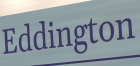
Eddington